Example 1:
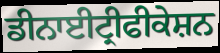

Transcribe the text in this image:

ਡੀਨਾਈਟ੍ਰੀਫੀਕੇਸ਼ਨ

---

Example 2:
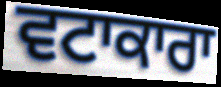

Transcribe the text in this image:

ਵਟਾਕਾਰਾ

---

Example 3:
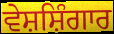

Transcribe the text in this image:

ਵੇਸ਼ਸ਼ਿੰਗਾਰ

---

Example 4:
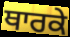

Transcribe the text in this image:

ਥਾਰਕੇ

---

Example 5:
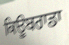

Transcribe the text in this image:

ਕਿਊਬਰਾਡਾ